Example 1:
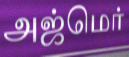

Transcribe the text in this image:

அஜ்மெர்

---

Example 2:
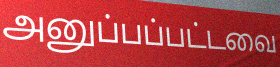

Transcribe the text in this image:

அனுப்பப்பட்டவை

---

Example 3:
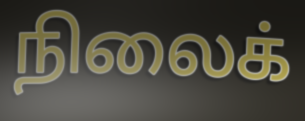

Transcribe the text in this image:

நிலைக்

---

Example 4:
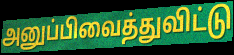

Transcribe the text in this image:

அனுப்பிவைத்துவிட்டு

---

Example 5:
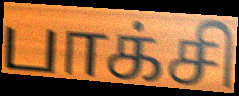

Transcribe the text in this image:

பாக்சி